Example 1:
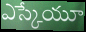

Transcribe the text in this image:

ఎస్కేయూ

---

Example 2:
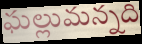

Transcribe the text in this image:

ఘల్లుమన్నది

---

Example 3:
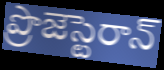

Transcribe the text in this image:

ప్రొజెస్టెరాన్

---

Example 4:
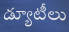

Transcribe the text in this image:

డ్యూటీలు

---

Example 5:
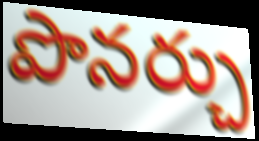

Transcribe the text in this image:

పొనర్చు